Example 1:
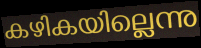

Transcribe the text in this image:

കഴികയില്ലെന്നു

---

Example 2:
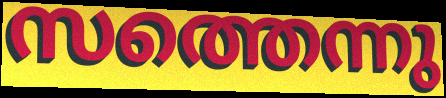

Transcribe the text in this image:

സത്തെന്നു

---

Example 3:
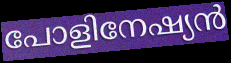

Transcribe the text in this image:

പോളിനേഷ്യൻ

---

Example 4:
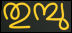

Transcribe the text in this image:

തുമ്പു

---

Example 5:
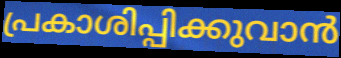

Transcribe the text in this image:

പ്രകാശിപ്പിക്കുവാൻ